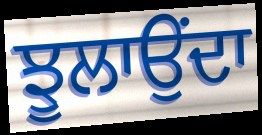
ਝੂਲਾਉਂਦਾ